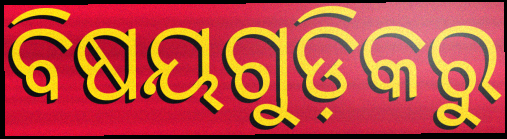
ବିଷୟଗୁଡ଼ିକରୁ